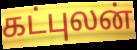
கட்புலன்